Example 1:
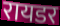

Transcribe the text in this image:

रायडर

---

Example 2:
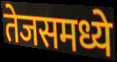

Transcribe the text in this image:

तेजसमध्ये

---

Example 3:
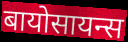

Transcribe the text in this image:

बायोसायन्स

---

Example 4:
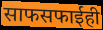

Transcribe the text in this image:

साफसफाईही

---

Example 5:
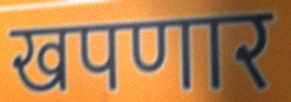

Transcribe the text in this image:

खपणार